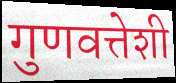
गुणवत्तेशी